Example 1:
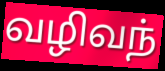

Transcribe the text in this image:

வழிவந்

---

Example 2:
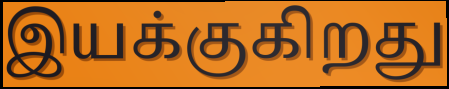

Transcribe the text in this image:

இயக்குகிறது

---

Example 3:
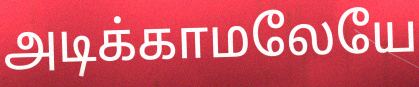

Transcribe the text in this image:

அடிக்காமலேயே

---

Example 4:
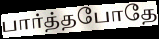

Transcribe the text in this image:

பார்த்தபோதே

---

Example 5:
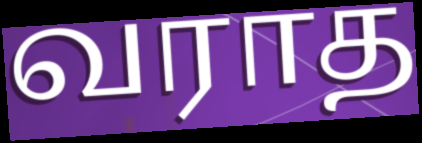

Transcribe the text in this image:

வராத